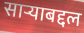
साऱ्याबद्दल